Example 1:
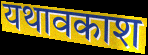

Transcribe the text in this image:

यथावकाश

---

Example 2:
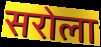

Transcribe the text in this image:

सरोला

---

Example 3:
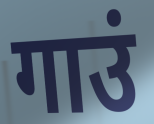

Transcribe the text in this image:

गाउं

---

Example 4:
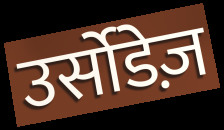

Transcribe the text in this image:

उर्सोडेज़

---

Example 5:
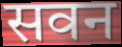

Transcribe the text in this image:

सवन